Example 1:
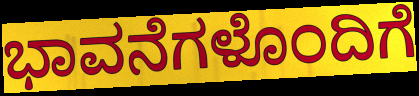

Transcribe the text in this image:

ಭಾವನೆಗಳೊಂದಿಗೆ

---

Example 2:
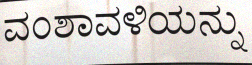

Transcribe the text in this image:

ವಂಶಾವಳಿಯನ್ನು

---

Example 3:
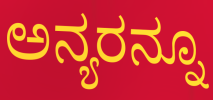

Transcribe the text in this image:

ಅನ್ಯರನ್ನೂ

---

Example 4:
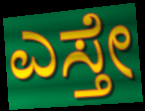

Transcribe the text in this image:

ಎಸ್ತೇ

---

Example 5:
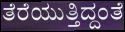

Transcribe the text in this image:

ತೆರೆಯುತ್ತಿದ್ದಂತೆ